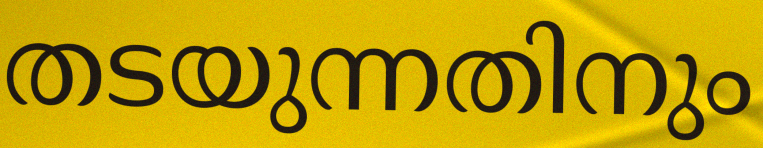
തടയുന്നതിനും